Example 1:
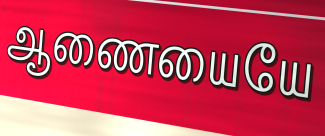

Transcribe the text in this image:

ஆணையையே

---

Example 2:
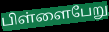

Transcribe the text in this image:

பிள்ளைபேறு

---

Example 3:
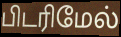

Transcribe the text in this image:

பிடரிமேல்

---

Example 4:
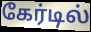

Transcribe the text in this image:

கேர்டில்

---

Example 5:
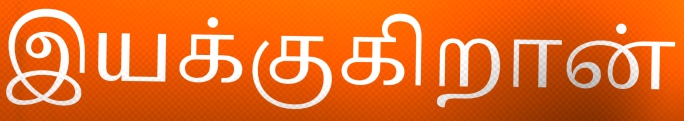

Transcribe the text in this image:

இயக்குகிறான்